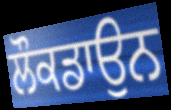
ਲੌਕਡਾਉਨ